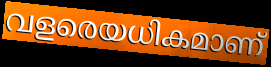
വളരെയധികമാണ്